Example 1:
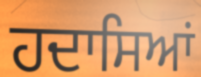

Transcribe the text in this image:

ਹਦਾਸਿਆਂ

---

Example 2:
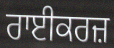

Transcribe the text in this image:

ਰਾਈਕਰਜ਼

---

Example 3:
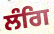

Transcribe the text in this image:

ਲੰਗਿ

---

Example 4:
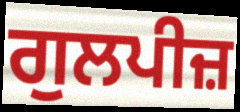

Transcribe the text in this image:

ਗੁਲਪੀਜ਼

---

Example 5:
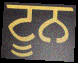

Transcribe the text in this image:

ਟੂਨ